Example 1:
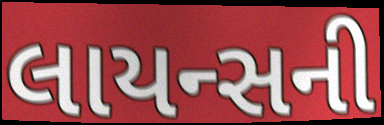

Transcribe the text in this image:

લાયન્સની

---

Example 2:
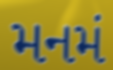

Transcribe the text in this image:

મનમં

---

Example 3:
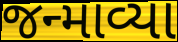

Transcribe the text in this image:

જન્માવ્યા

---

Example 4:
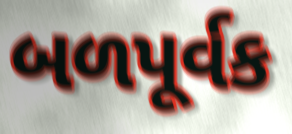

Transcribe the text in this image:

બળપૂર્વક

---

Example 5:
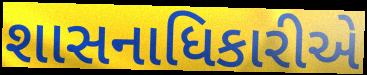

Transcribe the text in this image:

શાસનાધિકારીએ